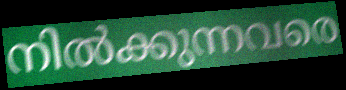
നിൽക്കുന്നവരെ